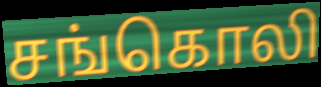
சங்கொலி